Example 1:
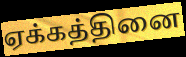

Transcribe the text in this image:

ஏக்கத்தினை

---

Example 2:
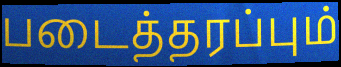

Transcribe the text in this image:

படைத்தரப்பும்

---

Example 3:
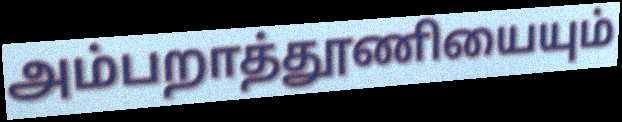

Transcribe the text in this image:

அம்பறாத்தூணியையும்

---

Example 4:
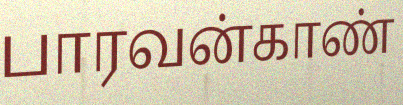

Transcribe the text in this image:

பாரவன்காண்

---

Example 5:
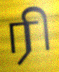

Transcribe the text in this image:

ரி